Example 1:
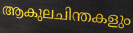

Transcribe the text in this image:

ആകുലചിന്തകളും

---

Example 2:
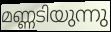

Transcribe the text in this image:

മണ്ണടിയുന്നു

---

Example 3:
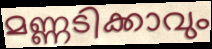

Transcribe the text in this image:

മണ്ണടിക്കാവും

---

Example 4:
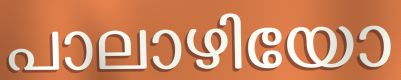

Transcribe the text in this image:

പാലാഴിയോ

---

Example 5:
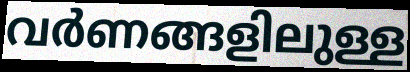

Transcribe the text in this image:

വർണങ്ങളിലുള്ള